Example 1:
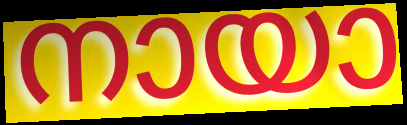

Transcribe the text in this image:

നായാ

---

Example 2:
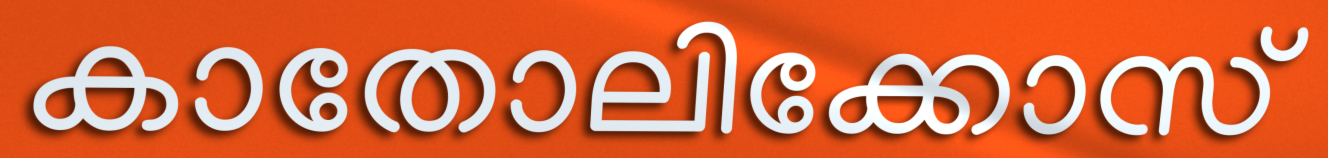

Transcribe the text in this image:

കാതോലിക്കോസ്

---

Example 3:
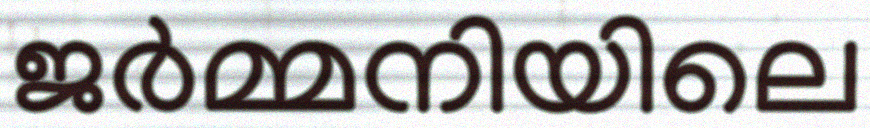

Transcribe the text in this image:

ജർമ്മനിയിലെ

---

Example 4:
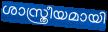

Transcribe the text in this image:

ശാസ്ത്രീയമായി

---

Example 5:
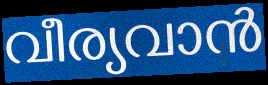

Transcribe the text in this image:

വീര്യവാൻ